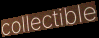
collectible